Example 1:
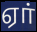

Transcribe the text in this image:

ஏர்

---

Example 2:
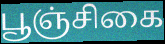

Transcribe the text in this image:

பூஞ்சிகை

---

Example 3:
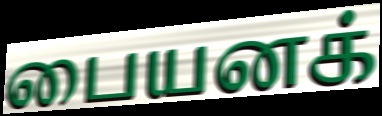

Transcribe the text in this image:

பையனக்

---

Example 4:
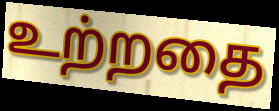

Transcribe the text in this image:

உற்றதை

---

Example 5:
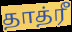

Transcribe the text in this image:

தாத்ரீ